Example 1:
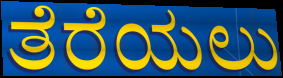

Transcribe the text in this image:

ತೆರೆಯಲು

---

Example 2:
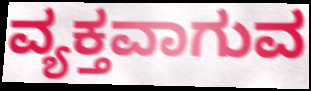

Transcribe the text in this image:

ವ್ಯಕ್ತವಾಗುವ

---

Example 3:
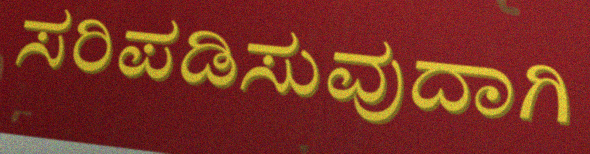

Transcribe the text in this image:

ಸರಿಪಡಿಸುವುದಾಗಿ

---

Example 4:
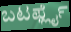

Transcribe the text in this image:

ಬಟರ್ಫ್ಲೈ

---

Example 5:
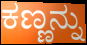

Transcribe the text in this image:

ಕಣ್ಣನ್ನು